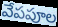
వేపపూల